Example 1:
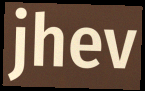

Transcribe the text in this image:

jhev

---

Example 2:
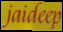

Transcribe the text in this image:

jaideep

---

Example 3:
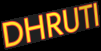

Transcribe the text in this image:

DHRUTI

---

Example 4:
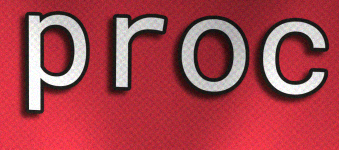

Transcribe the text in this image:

proc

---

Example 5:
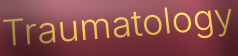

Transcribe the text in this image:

Traumatology